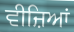
ਵੀਜ਼ਿਆਂ